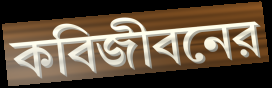
কবিজীবনের